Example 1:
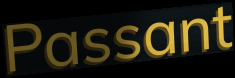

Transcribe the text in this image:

Passant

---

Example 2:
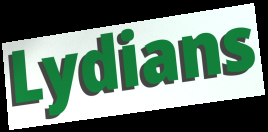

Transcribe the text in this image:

Lydians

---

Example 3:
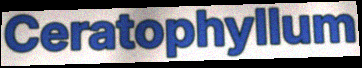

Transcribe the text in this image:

Ceratophyllum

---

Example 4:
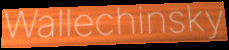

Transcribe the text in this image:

Wallechinsky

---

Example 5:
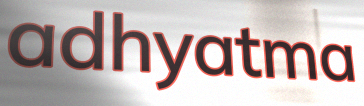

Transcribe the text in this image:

adhyatma